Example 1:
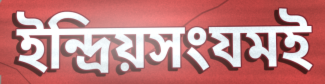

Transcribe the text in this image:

ইন্দ্রিয়সংযমই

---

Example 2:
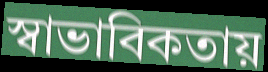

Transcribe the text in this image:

স্বাভাবিকতায়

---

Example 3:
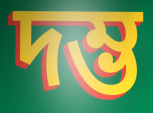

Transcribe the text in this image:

দম্ভ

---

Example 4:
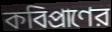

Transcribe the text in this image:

কবিপ্রাণের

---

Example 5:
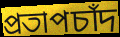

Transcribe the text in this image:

প্রতাপচাঁদ